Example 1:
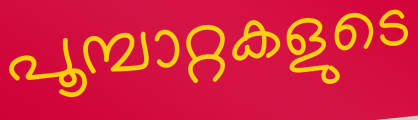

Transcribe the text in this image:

പൂമ്പാറ്റകളുടെ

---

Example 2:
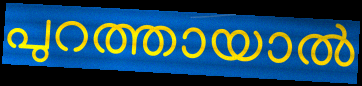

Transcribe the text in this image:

പുറത്തായാൽ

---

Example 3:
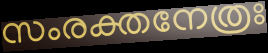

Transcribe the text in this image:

സംരക്തനേത്രഃ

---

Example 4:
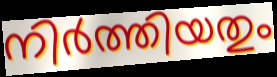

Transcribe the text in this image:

നിർത്തിയതും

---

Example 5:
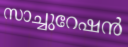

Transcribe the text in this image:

സാച്ചുറേഷൻ